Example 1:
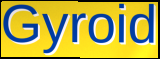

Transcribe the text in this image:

Gyroid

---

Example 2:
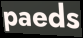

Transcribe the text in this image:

paeds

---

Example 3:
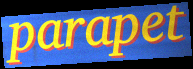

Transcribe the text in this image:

parapet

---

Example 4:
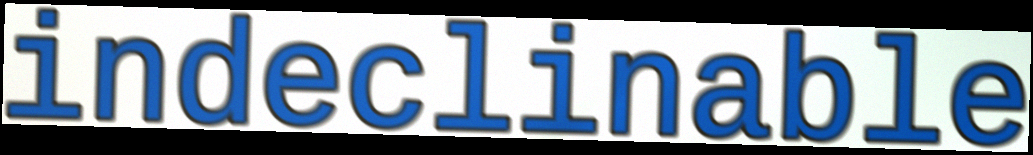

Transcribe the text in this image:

indeclinable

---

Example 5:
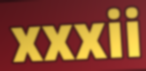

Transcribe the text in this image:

xxxii